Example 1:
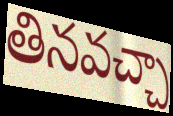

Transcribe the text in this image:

తినవచ్చా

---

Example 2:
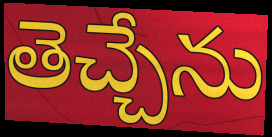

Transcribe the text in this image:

తెచ్చేను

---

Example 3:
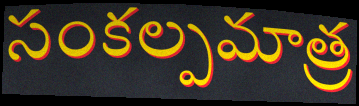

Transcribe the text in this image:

సంకల్పమాత్ర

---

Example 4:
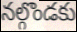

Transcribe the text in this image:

నల్గొండకు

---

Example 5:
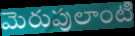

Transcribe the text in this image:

మెరుపులాంటి